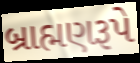
બ્રાહ્મણરૂપે